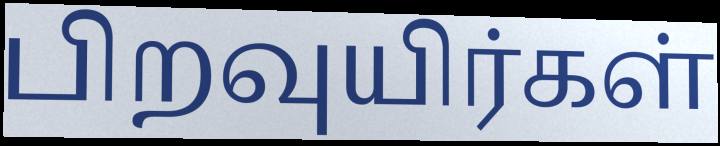
பிறவுயிர்கள்